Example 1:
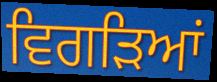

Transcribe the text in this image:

ਵਿਗੜਿਆਂ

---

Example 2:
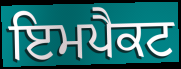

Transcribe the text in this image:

ਇਮਪੈਕਟ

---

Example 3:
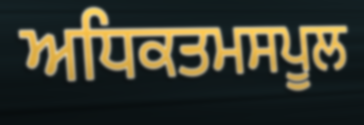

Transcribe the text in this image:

ਅਧਿਕਤਮਸਪੂਲ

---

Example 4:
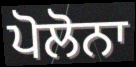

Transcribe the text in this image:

ਪੋਲੋਨਾ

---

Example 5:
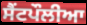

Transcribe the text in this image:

ਸੈਂਟਪੌਲੀਆ